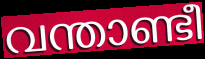
വന്താണ്ടീ